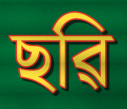
ছৱি